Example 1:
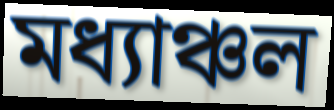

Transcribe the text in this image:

মধ্যাঞ্চল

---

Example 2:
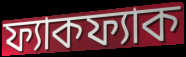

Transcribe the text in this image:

ফ্যাকফ্যাক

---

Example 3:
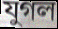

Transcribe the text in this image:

যুগল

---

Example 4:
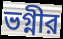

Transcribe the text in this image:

ভগ্নীর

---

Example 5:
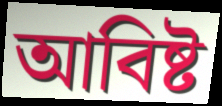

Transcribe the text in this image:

আবিষ্ট